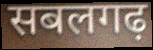
सबलगढ़